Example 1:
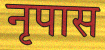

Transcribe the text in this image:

नृपास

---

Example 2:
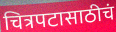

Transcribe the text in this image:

चित्रपटासाठीचं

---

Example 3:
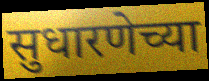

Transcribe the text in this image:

सुधारणेच्या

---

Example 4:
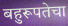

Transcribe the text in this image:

बहुरूपतेचा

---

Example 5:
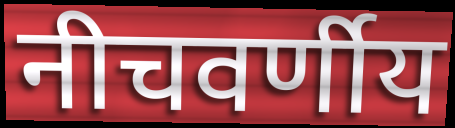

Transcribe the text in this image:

नीचवर्णीय